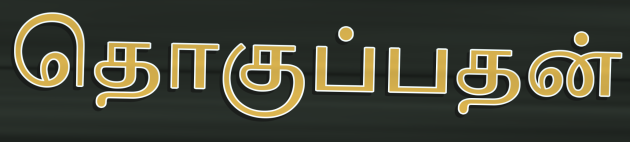
தொகுப்பதன்